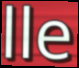
lle